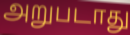
அறுபடாது